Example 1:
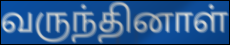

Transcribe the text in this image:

வருந்தினாள்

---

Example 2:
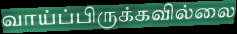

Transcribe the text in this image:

வாய்ப்பிருக்கவில்லை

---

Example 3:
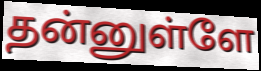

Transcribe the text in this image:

தன்னுள்ளே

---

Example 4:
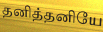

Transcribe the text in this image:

தனித்தனியே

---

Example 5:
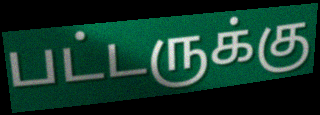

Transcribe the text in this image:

பட்டருக்கு